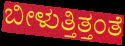
ಬೀಳುತ್ತಿತ್ತಂತೆ